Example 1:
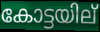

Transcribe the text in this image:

കോട്ടയില്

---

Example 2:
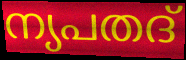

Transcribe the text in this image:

ന്യപതദ്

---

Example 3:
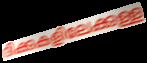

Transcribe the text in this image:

ദിക്കുകളിലേക്കുള്ള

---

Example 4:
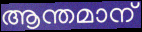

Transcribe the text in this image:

ആന്തമാന്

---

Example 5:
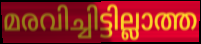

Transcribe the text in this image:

മരവിച്ചിട്ടില്ലാത്ത